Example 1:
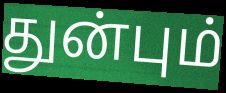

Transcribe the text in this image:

துன்பும்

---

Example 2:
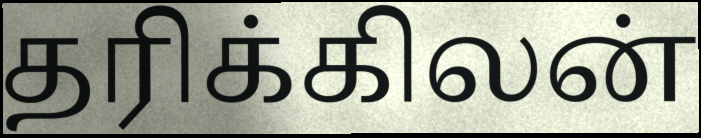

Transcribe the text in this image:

தரிக்கிலன்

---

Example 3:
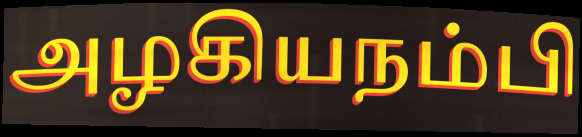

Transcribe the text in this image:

அழகியநம்பி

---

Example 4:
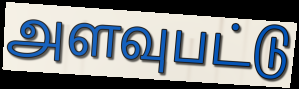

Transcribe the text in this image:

அளவுபட்டு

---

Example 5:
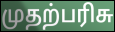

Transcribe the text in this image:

முதற்பரிசு